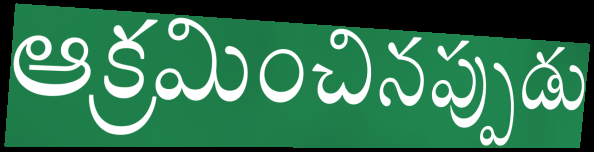
ఆక్రమించినప్పుడు